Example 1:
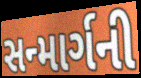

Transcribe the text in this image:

સન્માર્ગની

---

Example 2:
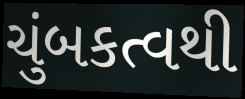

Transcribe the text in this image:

ચુંબકત્વથી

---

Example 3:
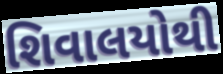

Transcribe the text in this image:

શિવાલયોથી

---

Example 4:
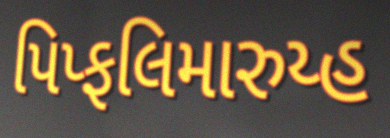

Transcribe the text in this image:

પિપ્ફલિમારુય્હ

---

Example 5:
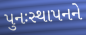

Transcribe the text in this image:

પુનઃસ્થાપનને